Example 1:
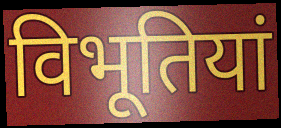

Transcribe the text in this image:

विभूतियां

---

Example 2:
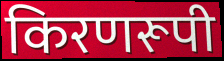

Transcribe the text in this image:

किरणरूपी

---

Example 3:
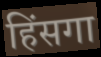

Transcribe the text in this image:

हिंसगा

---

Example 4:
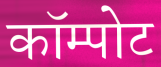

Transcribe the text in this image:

कॉम्पोट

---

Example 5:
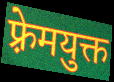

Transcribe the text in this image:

फ़्रेमयुक्त